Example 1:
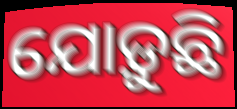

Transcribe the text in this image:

ଯୋଡ଼ୁଛି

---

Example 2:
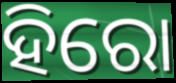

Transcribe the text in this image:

ହିରୋ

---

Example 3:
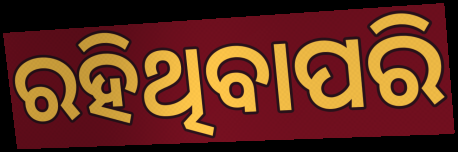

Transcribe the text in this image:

ରହିଥିବାପରି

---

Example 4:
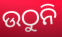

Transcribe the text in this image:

ଉଠୁନି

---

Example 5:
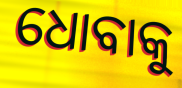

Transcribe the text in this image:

ଧୋବାକୁ